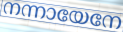
നന്നായേനേ